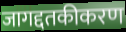
जागद्दतकीकरण